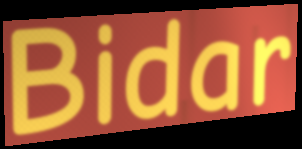
Bidar